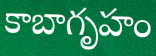
కాబాగృహం